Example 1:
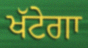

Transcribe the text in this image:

ਖੱਟੇਗਾ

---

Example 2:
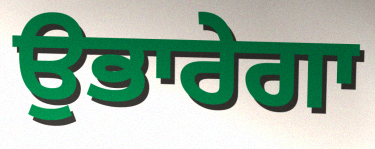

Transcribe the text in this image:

ਉਭਾਰੇਗਾ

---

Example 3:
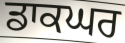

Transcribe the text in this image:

ਡਾਕਘਰ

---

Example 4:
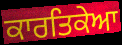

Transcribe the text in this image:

ਕਾਰਤਿਕੇਆ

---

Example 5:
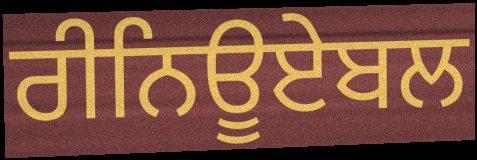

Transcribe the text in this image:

ਰੀਨਿਊਏਬਲ